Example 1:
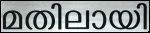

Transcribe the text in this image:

മതിലായി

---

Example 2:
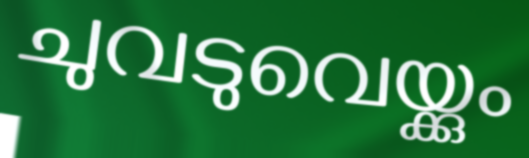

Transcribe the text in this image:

ചുവടുവെയ്ക്കും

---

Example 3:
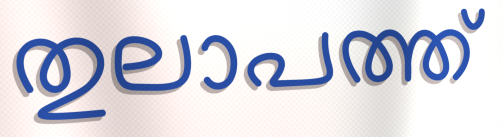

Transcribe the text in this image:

തുലാപത്ത്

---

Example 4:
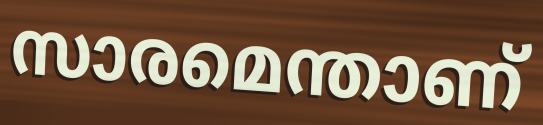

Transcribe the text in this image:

സാരമെന്താണ്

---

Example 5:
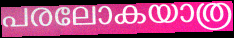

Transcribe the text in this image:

പരലോകയാത്ര